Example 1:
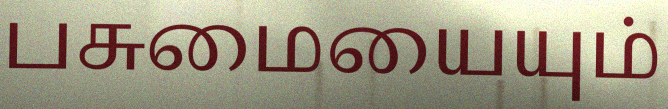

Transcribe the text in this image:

பசுமையையும்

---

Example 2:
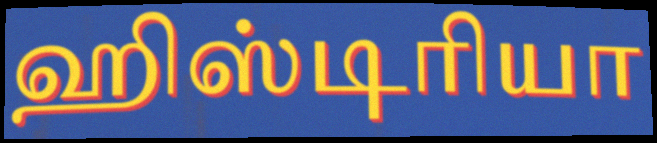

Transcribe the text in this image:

ஹிஸ்டிரியா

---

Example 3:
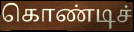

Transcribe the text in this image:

கொண்டிச்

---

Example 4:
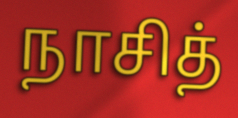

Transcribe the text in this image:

நாசித்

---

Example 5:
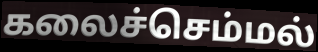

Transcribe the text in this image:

கலைச்செம்மல்